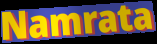
Namrata